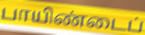
பாயிண்டைப்